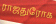
ராஜதுரோக